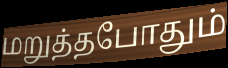
மறுத்தபோதும்